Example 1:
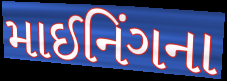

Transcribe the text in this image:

માઈનિંગના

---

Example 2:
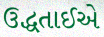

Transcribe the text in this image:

ઉદ્ધતાઈએ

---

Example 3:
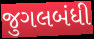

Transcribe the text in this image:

જુગલબંધી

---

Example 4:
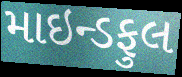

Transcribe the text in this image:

માઇન્ડફુલ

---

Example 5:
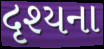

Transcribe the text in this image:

દૃશ્યના